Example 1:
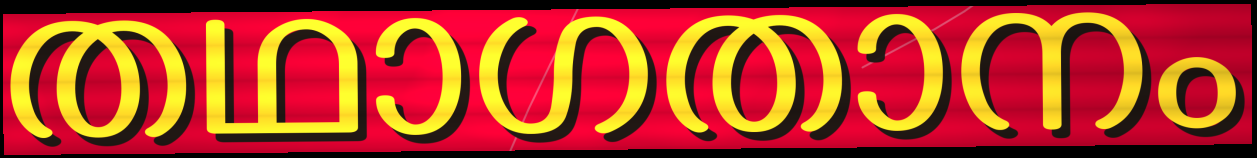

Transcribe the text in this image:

തഥാഗതാനം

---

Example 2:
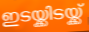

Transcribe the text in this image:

ഇടയ്ക്കിടയ്ക്ക്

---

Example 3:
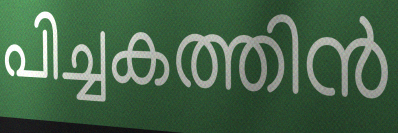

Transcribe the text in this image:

പിച്ചകത്തിൻ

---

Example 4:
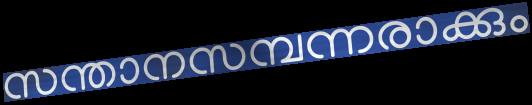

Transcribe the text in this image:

സന്താനസമ്പന്നരാക്കും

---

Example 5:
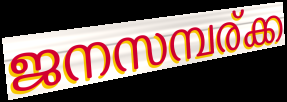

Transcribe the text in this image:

ജനസമ്പര്ക്ക